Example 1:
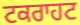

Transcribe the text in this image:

ਟਕਰਾਹਟ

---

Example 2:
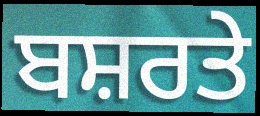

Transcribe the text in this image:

ਬਸ਼ਰਤੇ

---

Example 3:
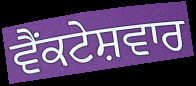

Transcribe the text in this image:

ਵੈਂਕਟੇਸ਼ਵਾਰ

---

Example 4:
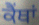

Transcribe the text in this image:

ਕੈਂਥਾਂ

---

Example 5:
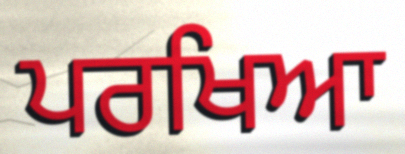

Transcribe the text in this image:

ਪਰਖਿਆ